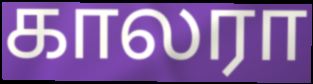
காலரா